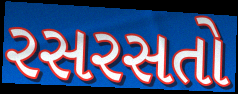
રસરસતો